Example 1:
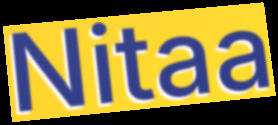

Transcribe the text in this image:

Nitaa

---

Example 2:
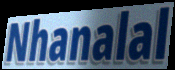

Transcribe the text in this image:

Nhanalal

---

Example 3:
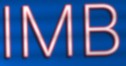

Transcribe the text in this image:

IMB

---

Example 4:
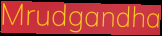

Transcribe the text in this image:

Mrudgandha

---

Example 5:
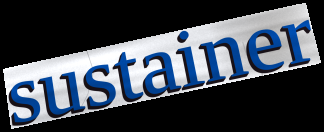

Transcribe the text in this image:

sustainer